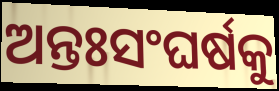
ଅନ୍ତଃସଂଘର୍ଷକୁ